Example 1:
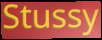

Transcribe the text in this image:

Stussy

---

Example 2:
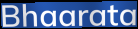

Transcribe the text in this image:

Bhaarata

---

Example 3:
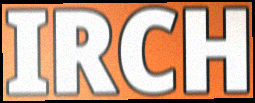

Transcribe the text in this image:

IRCH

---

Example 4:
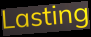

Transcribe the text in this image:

Lasting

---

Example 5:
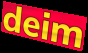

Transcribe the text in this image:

deim